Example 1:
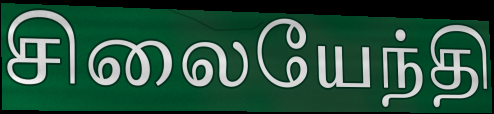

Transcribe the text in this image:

சிலையேந்தி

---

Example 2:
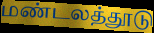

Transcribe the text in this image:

மண்டலத்தூடு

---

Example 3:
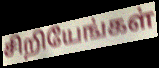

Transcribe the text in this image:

சிறியேங்கள்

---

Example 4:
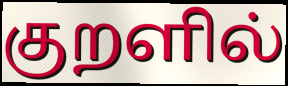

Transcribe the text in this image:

குறளில்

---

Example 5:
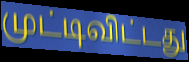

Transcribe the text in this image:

முட்டிவிட்டது